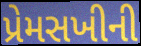
પ્રેમસખીની